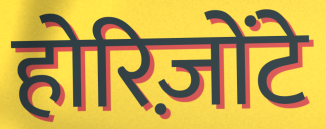
होरिज़ोंटे